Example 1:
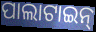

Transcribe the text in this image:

ପାଲାଟାଇନ୍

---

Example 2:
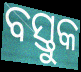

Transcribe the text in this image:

ବସ୍ତୁକ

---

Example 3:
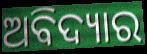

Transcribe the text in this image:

ଅବିଦ୍ୟାର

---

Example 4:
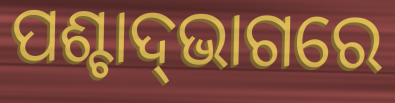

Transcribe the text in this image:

ପଶ୍ଚାଦ୍‍ଭାଗରେ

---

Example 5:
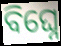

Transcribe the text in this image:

ବିଘ୍ନେ